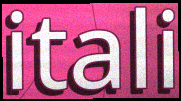
itali